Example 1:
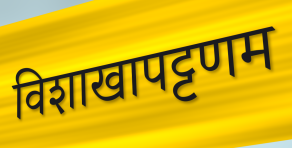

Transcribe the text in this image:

विशाखापट्टणम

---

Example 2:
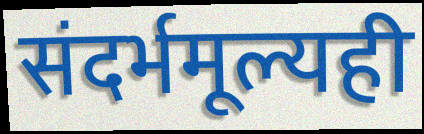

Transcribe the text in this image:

संदर्भमूल्यही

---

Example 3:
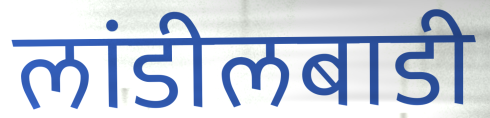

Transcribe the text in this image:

लांडीलबाडी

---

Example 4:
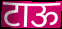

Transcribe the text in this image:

टाऊ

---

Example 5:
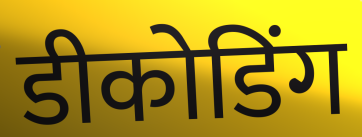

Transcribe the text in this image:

डीकोडिंग